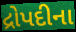
દ્રોપદીના